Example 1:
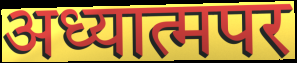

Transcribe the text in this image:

अध्यात्मपर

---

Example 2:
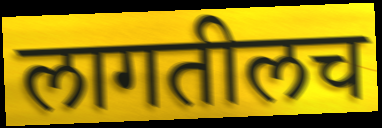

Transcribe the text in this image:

लागतीलच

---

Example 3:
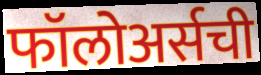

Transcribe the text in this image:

फॉलोअर्सची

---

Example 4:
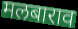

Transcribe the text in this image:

मलबाराव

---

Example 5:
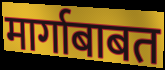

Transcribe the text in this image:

मार्गाबाबत